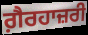
ਗ਼ੈਰਹਾਜ਼ਰੀ